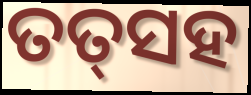
ତତ୍‌ସହ